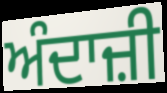
ਅੰਦਾਜ਼ੀ